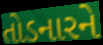
તોડનારને